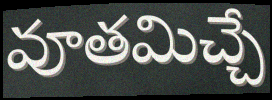
వూతమిచ్చే